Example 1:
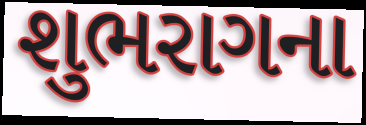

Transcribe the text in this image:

શુભરાગના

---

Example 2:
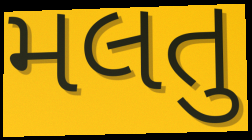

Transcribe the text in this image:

મલતુ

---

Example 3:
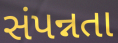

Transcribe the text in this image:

સંપન્નતા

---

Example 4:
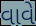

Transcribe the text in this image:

વાવે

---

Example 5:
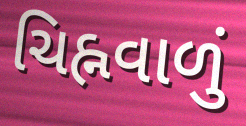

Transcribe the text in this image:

ચિહ્નવાળું